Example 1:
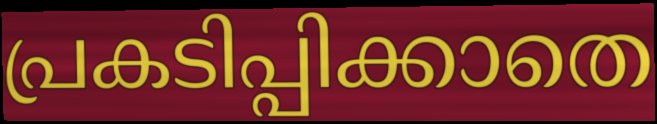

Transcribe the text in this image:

പ്രകടിപ്പിക്കാതെ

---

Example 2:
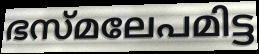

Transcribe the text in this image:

ഭസ്മലേപമിട്ട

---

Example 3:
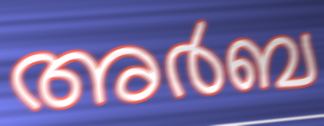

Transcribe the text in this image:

അർബ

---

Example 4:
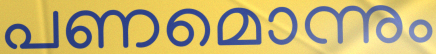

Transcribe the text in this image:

പണമൊന്നും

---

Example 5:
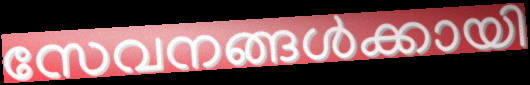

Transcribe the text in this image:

സേവനങ്ങൾക്കായി